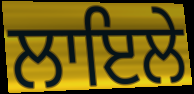
ਲਾਇਲੇ